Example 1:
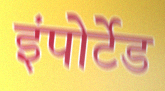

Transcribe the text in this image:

इंपोर्टेड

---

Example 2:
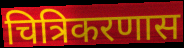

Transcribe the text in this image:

चित्रिकरणास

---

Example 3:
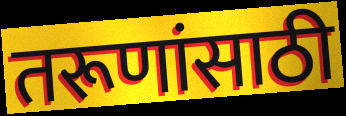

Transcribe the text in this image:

तरूणांसाठी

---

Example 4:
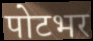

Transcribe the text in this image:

पोटभर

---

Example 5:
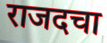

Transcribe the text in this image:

राजदचा